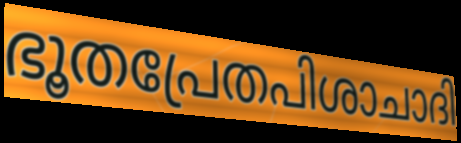
ഭൂതപ്രേതപിശാചാദി